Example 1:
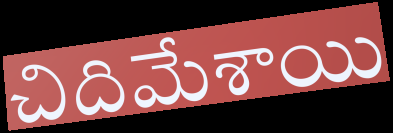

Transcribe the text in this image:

చిదిమేశాయి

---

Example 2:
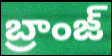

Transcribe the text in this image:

బ్రాంజ్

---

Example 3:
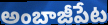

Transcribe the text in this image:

అంబాజీపేట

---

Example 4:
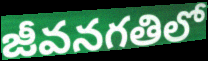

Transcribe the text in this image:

జీవనగతిలో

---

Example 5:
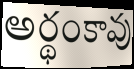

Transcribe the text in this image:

అర్థంకావు